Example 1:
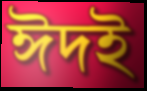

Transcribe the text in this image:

ঈদই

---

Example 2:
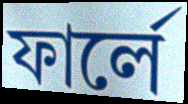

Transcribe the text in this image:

ফার্লে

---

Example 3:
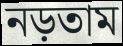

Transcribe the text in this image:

নড়তাম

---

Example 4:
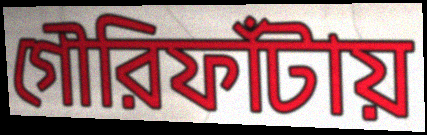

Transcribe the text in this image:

গৌরিফাঁটায়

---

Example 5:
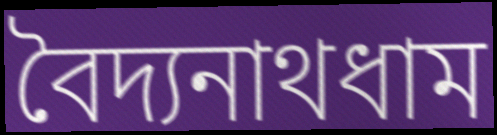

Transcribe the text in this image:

বৈদ্যনাথধাম